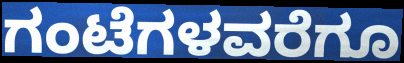
ಗಂಟೆಗಳವರೆಗೂ